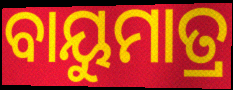
ବାୟୁମାତ୍ର